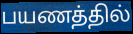
பயணத்தில்